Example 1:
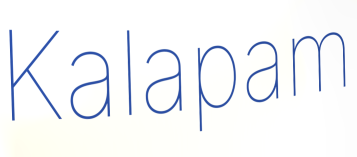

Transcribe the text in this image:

Kalapam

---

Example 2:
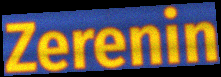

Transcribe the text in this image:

Zerenin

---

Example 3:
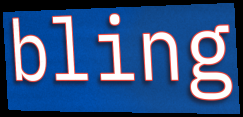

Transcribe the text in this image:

bling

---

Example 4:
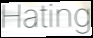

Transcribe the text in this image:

Hating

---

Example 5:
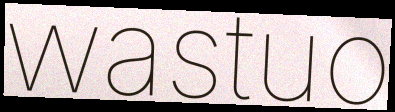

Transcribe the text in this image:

wastuo